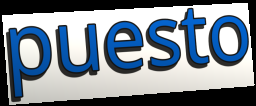
puesto